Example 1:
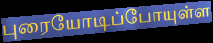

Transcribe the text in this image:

புரையோடிப்போயுள்ள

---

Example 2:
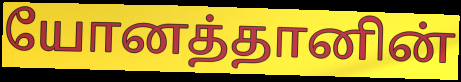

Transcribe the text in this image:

யோனத்தானின்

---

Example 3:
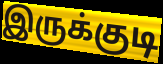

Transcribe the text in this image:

இருக்குடி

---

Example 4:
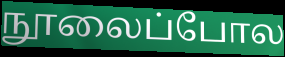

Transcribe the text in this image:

நூலைப்போல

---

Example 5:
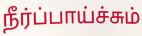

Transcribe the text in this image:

நீர்ப்பாய்ச்சும்